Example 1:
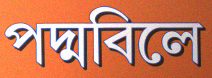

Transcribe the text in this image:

পদ্মবিলে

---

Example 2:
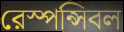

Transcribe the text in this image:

রেস্পন্সিবল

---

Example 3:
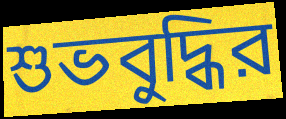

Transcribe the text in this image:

শুভবুদ্ধির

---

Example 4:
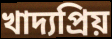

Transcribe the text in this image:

খাদ্যপ্রিয়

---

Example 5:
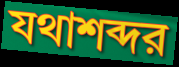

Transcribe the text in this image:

যথাশব্দর